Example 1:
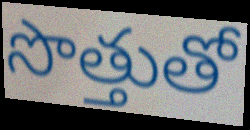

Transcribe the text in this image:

సొత్తుతో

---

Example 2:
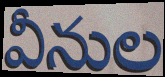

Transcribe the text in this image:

వీనుల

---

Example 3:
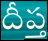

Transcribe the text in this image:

దీప్త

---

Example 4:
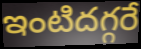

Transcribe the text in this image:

ఇంటిదగ్గరే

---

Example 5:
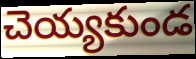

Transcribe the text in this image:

చెయ్యకుండ